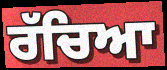
ਰੱਚਿਆ